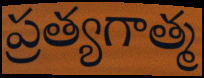
ప్రత్యగాత్మ